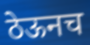
ठेऊनच